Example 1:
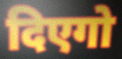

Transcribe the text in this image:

दिएगो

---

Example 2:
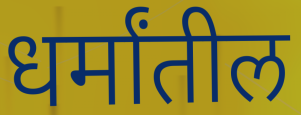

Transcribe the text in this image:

धर्मांतील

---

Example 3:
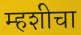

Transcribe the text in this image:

म्हशीचा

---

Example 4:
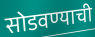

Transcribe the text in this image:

सोडवण्याची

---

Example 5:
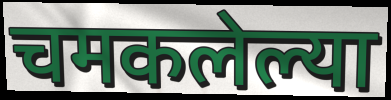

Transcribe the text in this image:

चमकलेल्या